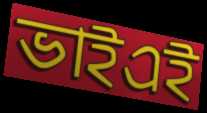
ভাইএই